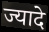
ज्यादे